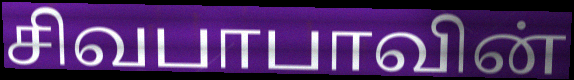
சிவபாபாவின்